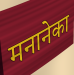
मनानेका